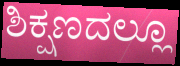
ಶಿಕ್ಷಣದಲ್ಲೂ